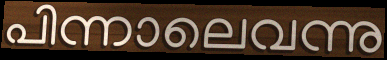
പിന്നാലെവന്നു